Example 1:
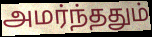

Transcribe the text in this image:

அமர்ந்ததும்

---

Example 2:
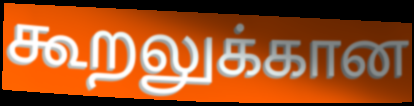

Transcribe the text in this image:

கூறலுக்கான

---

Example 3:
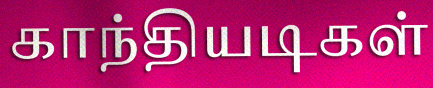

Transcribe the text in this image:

காந்தியடிகள்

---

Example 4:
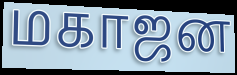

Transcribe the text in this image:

மகாஜன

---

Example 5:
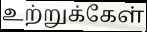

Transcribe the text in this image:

உற்றுக்கேள்